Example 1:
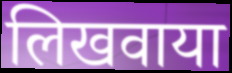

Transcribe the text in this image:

लिखवाया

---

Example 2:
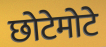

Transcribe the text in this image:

छोटेमोटे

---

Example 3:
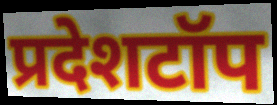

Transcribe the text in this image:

प्रदेशटॉप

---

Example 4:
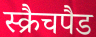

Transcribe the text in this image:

स्क्रैचपैड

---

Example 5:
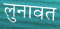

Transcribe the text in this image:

लुनावत